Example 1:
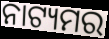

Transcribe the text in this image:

ନାଟ୍ୟମର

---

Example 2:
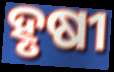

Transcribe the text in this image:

ହୃଷୀ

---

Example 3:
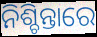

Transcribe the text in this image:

ନିଶ୍ଚିନ୍ତାରେ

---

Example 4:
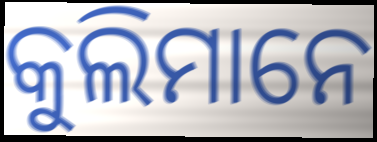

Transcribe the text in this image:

କୁଲିମାନେ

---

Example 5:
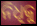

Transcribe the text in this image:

ନିଧିକୁ